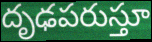
దృఢపరుస్తూ